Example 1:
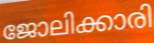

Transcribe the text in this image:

ജോലിക്കാരി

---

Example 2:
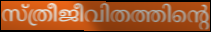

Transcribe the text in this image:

സ്ത്രീജീവിതത്തിന്റെ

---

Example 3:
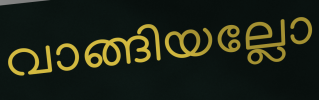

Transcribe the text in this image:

വാങ്ങിയല്ലോ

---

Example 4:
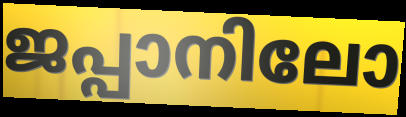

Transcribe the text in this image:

ജപ്പാനിലോ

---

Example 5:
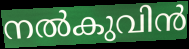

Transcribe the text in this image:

നൽകുവിൻ